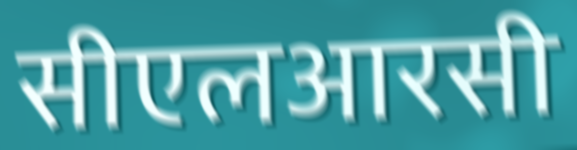
सीएलआरसी